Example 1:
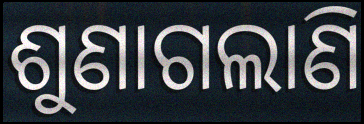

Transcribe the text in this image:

ଶୁଣାଗଲାଣି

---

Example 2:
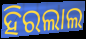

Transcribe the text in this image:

ହିରଲାଲ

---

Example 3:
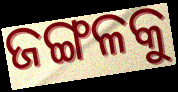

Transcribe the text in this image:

ଜଙ୍ଗଳକୁ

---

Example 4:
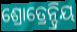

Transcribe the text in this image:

ଶ୍ରୋତ୍ରେନ୍ଦ୍ରିୟ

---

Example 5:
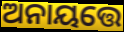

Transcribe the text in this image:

ଅନାୟତ୍ତେ